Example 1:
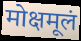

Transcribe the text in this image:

मोक्षमूलं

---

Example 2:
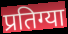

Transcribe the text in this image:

प्रतिग्या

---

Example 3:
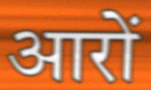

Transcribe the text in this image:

आरों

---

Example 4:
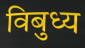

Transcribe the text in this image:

विबुध्य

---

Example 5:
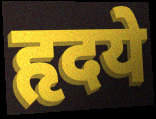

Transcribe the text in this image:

हृदये